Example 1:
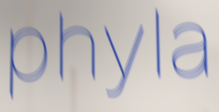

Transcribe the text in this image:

phyla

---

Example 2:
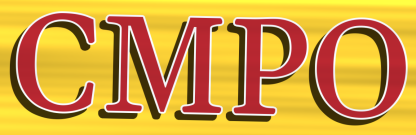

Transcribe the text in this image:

CMPO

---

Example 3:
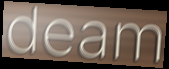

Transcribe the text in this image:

deam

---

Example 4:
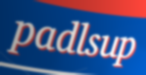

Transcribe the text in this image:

padlsup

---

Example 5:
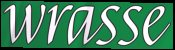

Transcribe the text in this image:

wrasse